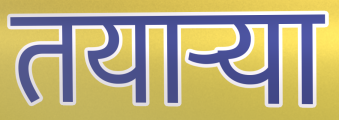
तयाऱ्या